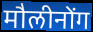
मौलीनोंग